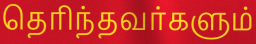
தெரிந்தவர்களும்